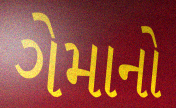
ગેમાનો